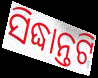
ସିଦ୍ଧାନ୍ତଟି